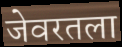
जेवरतला